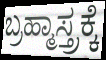
ಬ್ರಹ್ಮಾಸ್ತ್ರಕ್ಕೆ